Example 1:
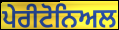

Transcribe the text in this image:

ਪੇਰੀਟੋਨਿਅਲ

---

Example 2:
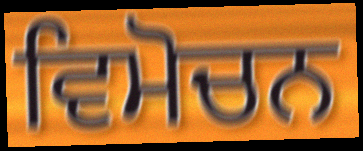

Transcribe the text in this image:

ਵਿਮੋਚਨ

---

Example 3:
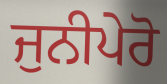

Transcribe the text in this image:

ਜੁਨੀਪੇਰੋ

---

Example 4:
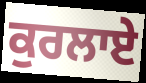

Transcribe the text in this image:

ਕੁਰਲਾਏ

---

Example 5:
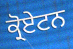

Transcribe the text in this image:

ਕ੍ਰੋਏਟਨ